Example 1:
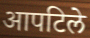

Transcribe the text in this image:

आपटिले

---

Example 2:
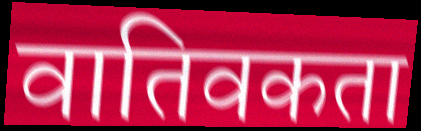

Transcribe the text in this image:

वातिवकता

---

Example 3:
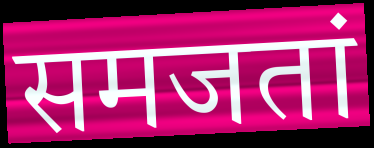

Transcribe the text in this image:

समजतां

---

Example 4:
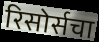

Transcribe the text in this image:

रिसोर्सचा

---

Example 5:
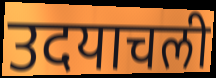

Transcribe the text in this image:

उदयाचली